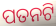
ପତନଟି